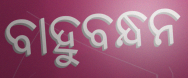
ବାହୁବନ୍ଧନ